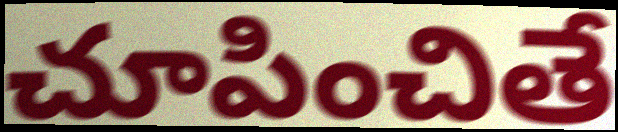
చూపించితే